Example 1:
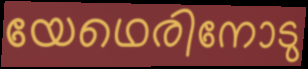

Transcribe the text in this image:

യേഥെരിനോടു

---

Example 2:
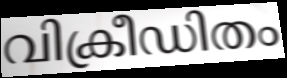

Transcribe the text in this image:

വിക്രീഡിതം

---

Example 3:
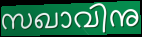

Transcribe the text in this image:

സഖാവിനു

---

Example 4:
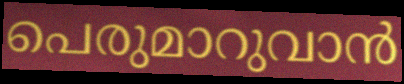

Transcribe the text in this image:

പെരുമാറുവാൻ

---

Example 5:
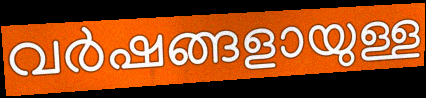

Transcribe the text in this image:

വർഷങ്ങളായുള്ള